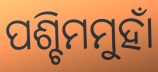
ପଶ୍ଚିମମୁହାଁ